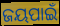
ଜୟପାଇଁ